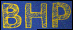
BHP